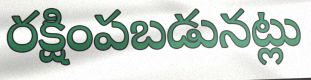
రక్షింపబడునట్లు